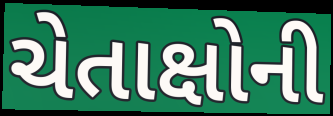
ચેતાક્ષોની